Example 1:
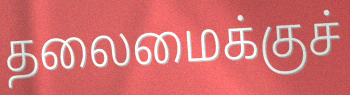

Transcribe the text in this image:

தலைமைக்குச்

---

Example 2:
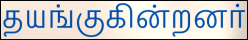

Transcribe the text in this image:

தயங்குகின்றனர்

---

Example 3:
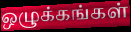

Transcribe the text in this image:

ஒழுக்கங்கள்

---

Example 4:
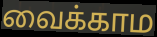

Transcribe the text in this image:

வைக்காம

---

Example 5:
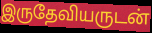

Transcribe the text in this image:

இருதேவியருடன்